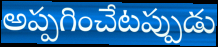
అప్పగించేటప్పుడు